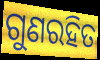
ଗୁଣରହିତ